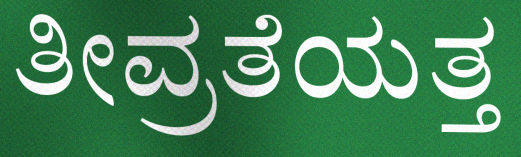
ತೀವ್ರತೆಯತ್ತ